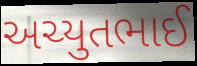
અચ્યુતભાઈ